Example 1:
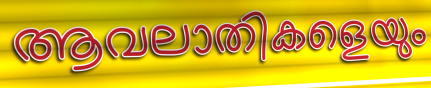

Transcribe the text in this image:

ആവലാതികളെയും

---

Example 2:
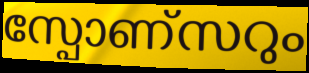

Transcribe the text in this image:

സ്പോണ്സറും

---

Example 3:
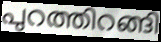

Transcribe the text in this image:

പുറത്തിറങ്ങി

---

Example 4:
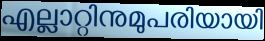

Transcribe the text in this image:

എല്ലാറ്റിനുമുപരിയായി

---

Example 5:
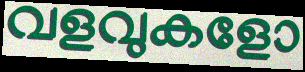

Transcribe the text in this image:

വളവുകളോ